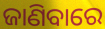
ଜାଣିବାରେ